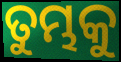
ତୁମ୍ଭକୁ